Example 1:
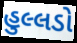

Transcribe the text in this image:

હુલ્લડો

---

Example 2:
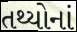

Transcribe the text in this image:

તથ્યોનાં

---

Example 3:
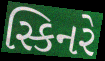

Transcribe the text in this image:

સ્કિનરે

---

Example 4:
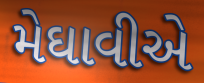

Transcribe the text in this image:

મેઘાવીએ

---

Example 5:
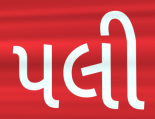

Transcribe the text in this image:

પલી